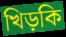
খিড়কি